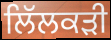
ਲਿੱਲਕੜੀ